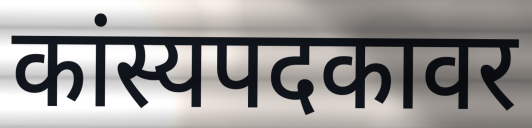
कांस्यपदकावर